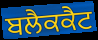
ਬਲੈਕਕੈਟ